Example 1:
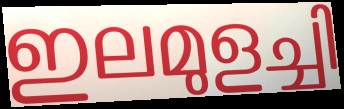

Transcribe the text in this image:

ഇലമുളച്ചി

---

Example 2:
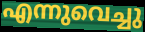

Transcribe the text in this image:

എന്നുവെച്ചു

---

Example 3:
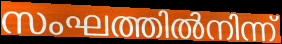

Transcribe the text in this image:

സംഘത്തിൽനിന്ന്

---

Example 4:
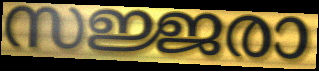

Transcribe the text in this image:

സജ്ജരാ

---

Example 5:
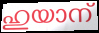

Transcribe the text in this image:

ഹുയാന്